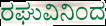
ರಘುವಿನಿಂದ